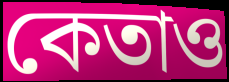
কেতাও